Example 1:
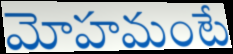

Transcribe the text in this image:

మోహమంటే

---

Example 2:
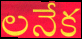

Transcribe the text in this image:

లనేక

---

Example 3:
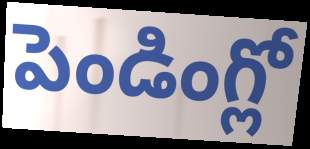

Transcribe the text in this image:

పెండింగ్లో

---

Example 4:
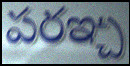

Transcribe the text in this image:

పరఞ్చ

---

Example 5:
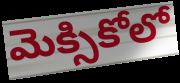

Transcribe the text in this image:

మెక్సికోలో